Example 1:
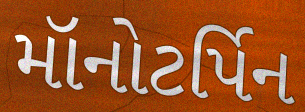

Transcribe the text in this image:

મૉનોટર્પિન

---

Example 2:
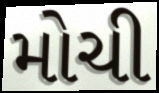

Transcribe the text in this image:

મોચી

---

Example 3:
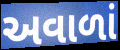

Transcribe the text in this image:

અવાળાં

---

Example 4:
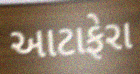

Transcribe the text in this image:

આટાફેરા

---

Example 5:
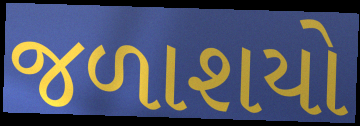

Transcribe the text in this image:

જળાશયો